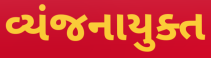
વ્યંજનાયુક્ત